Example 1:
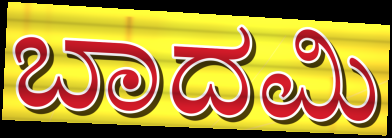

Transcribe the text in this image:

ಬಾದಮಿ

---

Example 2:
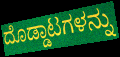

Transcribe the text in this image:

ದೊಡ್ಡಾಟಗಳನ್ನು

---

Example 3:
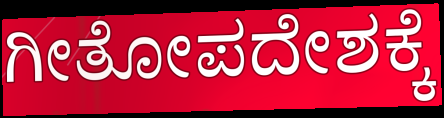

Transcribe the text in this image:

ಗೀತೋಪದೇಶಕ್ಕೆ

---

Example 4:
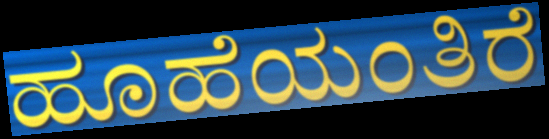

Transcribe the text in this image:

ಹೂಹೆಯಂತಿರೆ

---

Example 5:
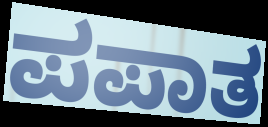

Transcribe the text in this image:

ಪಪಾತ